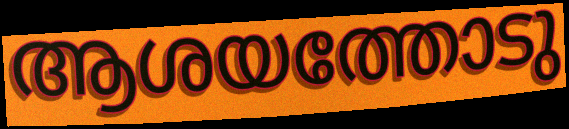
ആശയത്തോടു